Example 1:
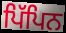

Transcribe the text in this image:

ਪਿੱਪਿਨ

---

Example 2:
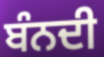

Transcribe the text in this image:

ਬੰਨਦੀ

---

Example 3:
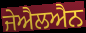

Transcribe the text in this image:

ਜੇਐਲਐਨ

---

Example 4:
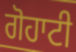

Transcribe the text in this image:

ਗੋਹਾਟੀ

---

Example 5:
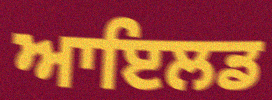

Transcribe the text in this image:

ਆਇਲਡ